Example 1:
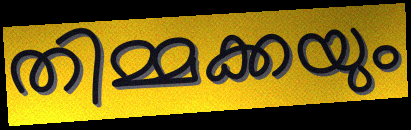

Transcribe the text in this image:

തിമ്മക്കയും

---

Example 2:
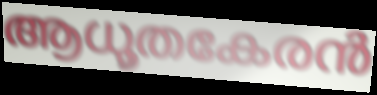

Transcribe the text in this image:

ആധൂതകേരൻ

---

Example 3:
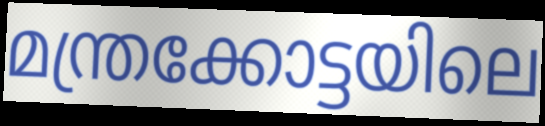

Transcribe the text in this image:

മന്ത്രക്കോട്ടയിലെ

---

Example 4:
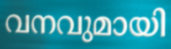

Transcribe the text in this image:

വനവുമായി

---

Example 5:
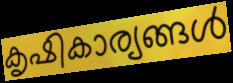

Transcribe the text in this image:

കൃഷികാര്യങ്ങൾ